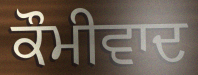
ਕੌਮੀਵਾਦ